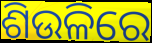
ଶିଉଳିରେ